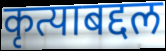
कृत्याबद्दल